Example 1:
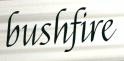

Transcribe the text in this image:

bushfire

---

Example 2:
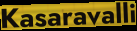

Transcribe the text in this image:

Kasaravalli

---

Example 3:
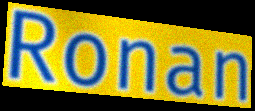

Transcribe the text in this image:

Ronan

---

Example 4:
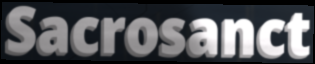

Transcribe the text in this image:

Sacrosanct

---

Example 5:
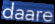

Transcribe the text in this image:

daare